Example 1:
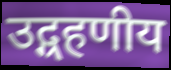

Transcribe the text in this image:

उद्ग्रहणीय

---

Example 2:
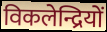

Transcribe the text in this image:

विकलेन्द्रियों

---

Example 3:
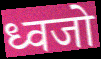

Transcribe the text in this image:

ध्वजो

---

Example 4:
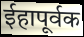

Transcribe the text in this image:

ईहापूर्वक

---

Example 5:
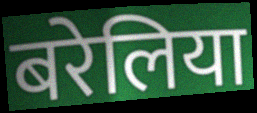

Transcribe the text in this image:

बरेलिया